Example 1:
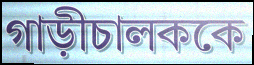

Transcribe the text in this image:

গাড়ীচালককে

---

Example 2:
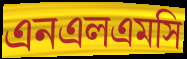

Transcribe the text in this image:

এনএলএমসি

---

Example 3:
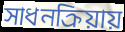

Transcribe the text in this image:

সাধনক্রিয়ায়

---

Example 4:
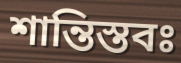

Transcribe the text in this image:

শান্তিস্তবঃ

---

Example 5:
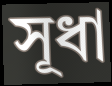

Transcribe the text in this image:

সূধা